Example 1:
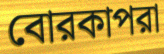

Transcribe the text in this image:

বোরকাপরা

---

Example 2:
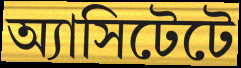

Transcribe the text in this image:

অ্যাসিটেটে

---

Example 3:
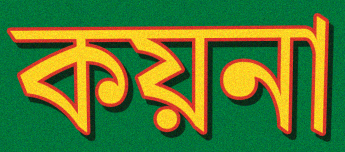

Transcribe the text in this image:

কয়না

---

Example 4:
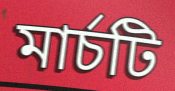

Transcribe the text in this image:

মার্চটি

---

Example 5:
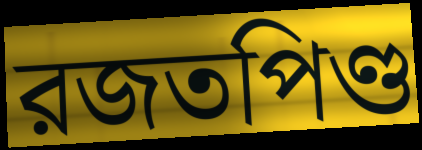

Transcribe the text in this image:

রজতপিণ্ড